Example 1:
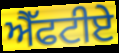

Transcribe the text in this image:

ਐੱਫਟੀਏ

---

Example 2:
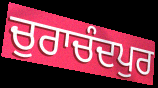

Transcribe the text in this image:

ਚੁਰਾਚੰਦਪੁਰ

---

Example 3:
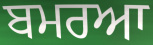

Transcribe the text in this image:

ਬਮਰਆ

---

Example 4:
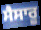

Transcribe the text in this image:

ਸੈਸਾਰੂ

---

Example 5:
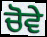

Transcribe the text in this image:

ਚੋਵੇ